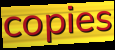
copies